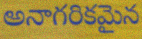
అనాగరికమైన